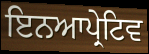
ਇਨਆਪ੍ਰੇਟਿਵ